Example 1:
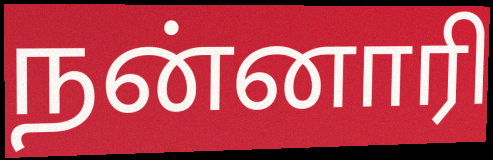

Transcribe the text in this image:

நன்னாரி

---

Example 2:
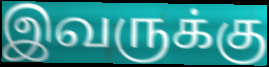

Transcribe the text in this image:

இவருக்கு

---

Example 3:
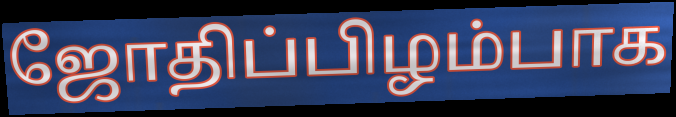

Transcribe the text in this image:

ஜோதிப்பிழம்பாக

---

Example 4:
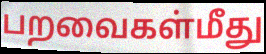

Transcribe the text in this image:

பறவைகள்மீது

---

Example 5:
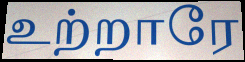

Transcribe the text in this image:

உற்றாரே